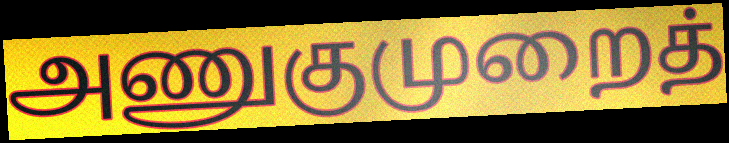
அணுகுமுறைத்